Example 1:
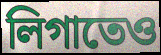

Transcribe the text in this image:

লিগাতেও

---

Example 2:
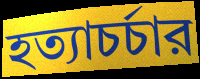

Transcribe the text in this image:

হত্যাচর্চার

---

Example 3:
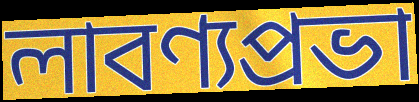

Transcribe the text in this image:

লাবণ্যপ্রভা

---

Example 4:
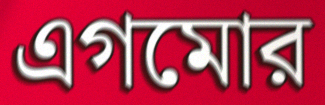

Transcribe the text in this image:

এগমোর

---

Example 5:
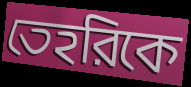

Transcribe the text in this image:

তেহরিকে